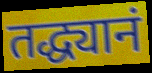
तद्ध्यानं